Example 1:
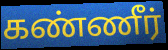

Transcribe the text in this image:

கண்ணீர்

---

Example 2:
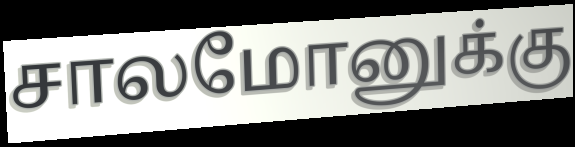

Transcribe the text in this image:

சாலமோனுக்கு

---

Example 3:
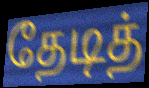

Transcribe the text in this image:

தேடித்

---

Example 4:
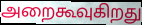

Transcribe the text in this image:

அறைகூவுகிறது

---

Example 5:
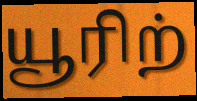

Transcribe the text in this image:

யூரிற்